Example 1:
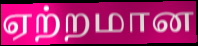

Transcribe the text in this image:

ஏற்றமான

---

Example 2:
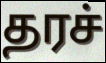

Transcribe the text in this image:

தரச்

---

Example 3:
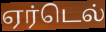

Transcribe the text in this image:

ஏர்டெல்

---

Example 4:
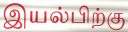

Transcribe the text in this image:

இயல்பிற்கு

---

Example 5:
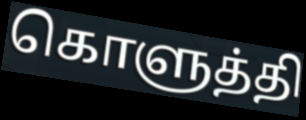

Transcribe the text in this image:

கொளுத்தி